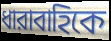
ধারাবাহিকে